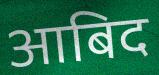
आबिद